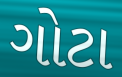
ગોટા